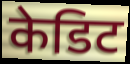
केडिट